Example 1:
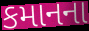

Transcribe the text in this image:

કમાનના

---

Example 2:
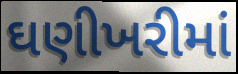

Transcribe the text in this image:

ઘણીખરીમાં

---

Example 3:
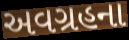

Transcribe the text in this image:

અવગ્રહના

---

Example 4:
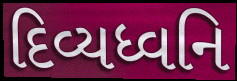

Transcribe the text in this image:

દિવ્યધ્વનિ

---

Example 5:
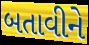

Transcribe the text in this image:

બતાવીને